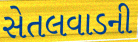
સેતલવાડની